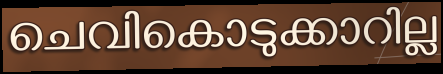
ചെവികൊടുക്കാറില്ല